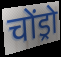
चोंड्रो